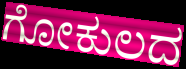
ಗೋಕುಲದ